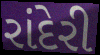
રાંદેરી